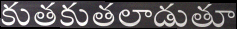
కుతకుతలాడుతూ